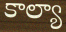
కాల్యా